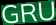
GRU